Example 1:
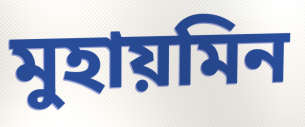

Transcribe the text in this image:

মুহায়মিন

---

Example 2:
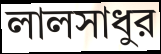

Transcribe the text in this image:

লালসাধুর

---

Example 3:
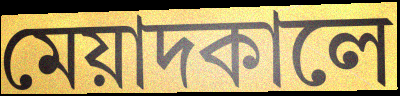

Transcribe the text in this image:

মেয়াদকালে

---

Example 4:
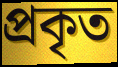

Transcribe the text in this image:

প্রকৃত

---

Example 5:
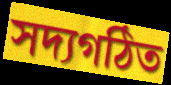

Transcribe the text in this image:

সদ্যগঠিত